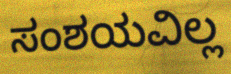
ಸಂಶಯವಿಲ್ಲ